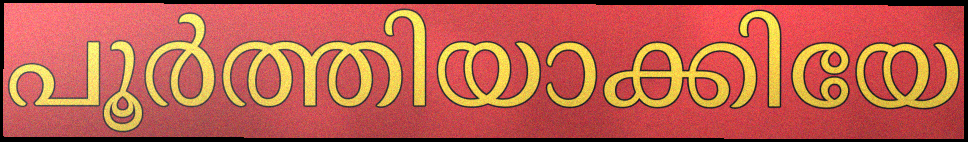
പൂർത്തിയാക്കിയേ